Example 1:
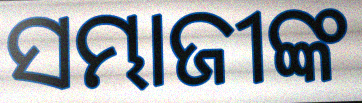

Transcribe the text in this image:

ସମ୍ଭାଜୀଙ୍କ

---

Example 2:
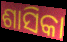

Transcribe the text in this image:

ଶାସିକା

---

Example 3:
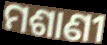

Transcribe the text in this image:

ମଶାଣୀ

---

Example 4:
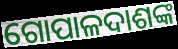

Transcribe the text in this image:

ଗୋପାଳଦାଶଙ୍କ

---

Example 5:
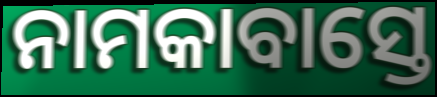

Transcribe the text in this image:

ନାମକାବାସ୍ତେ